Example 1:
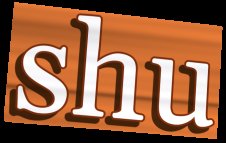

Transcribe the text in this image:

shu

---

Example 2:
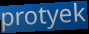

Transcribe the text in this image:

protyek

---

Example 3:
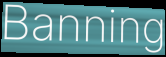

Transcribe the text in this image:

Banning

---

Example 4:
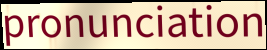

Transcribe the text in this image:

pronunciation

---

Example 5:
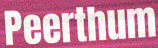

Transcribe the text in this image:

Peerthum